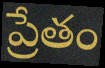
ప్రేతం